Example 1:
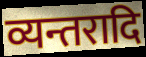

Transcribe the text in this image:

व्यन्तरादि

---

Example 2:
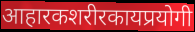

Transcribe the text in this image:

आहारकशरीरकायप्रयोगी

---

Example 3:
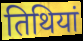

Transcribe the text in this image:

तिथियां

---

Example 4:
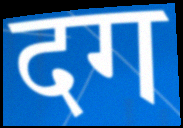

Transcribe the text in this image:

दग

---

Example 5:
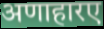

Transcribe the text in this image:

अणाहारए